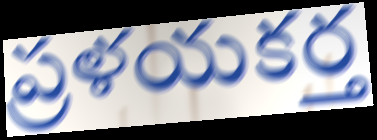
ప్రళయకర్త